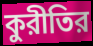
কুরীতির